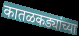
कातळकड्यांच्या